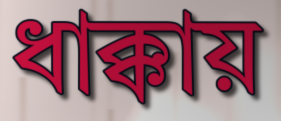
ধাক্কায়